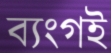
ব্যংগই